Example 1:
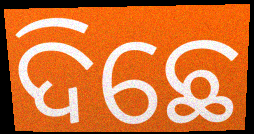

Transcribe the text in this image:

ଦିଛେ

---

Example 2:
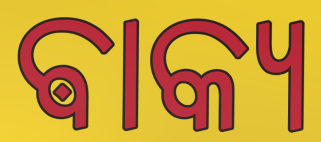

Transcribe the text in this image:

ଵାକ୍ୟ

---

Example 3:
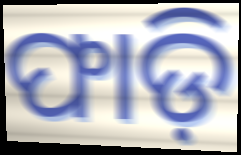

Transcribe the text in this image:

ଫାଡ଼ି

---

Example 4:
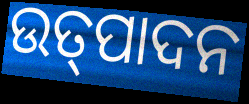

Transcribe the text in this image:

ଉତ୍‌ପାଦନ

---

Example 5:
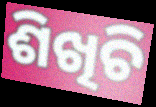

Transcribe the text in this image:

ଶିଖିଚି